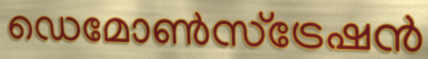
ഡെമോൺസ്ട്രേഷൻ